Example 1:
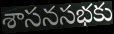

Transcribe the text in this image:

శాసనసభకు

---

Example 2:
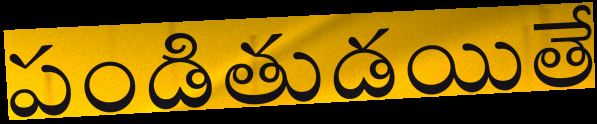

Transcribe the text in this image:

పండితుడయితే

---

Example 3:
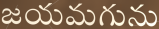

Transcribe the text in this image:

జయమగును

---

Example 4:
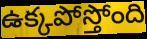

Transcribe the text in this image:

ఉక్కపోస్తోంది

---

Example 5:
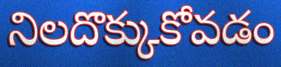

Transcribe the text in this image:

నిలదొక్కుకోవడం